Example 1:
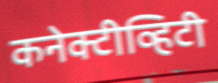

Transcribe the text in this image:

कनेक्टीव्हिटी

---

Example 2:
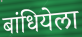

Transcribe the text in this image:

बांधियेला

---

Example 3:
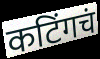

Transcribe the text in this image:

कटिंगचं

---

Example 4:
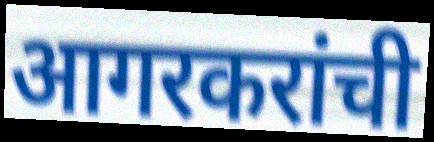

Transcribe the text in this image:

आगरकरांची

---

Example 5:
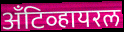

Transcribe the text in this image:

अँटिव्हायरल